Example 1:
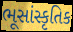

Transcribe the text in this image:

ભૂસાંસ્કૃતિક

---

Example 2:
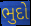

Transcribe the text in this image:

ભુદો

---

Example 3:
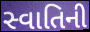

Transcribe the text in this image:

સ્વાતિની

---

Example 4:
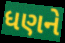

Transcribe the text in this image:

ધણને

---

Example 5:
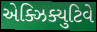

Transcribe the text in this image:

એક્ઝિક્યુટિવે